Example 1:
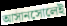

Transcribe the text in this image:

আসানসোলেই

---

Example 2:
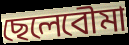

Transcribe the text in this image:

ছেলেবৌমা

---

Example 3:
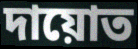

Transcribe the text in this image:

দায়োত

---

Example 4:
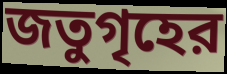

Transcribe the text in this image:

জতুগৃহের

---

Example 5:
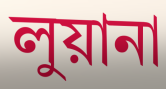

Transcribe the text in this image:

লুয়ানা